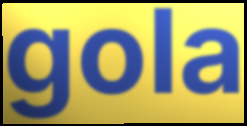
gola